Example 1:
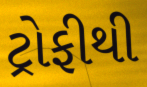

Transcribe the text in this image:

ટ્રોફીથી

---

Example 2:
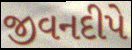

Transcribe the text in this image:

જીવનદીપે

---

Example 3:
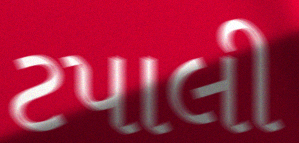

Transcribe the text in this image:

ટપાલી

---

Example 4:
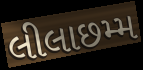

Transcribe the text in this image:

લીલાછમ્મ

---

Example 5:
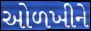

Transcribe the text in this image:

ઓળખીને